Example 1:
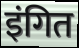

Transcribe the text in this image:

इंगित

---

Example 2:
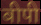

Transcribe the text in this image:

बीपी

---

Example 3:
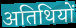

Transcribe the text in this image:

अतिथियों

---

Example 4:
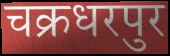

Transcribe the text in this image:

चक्रधरपुर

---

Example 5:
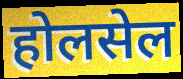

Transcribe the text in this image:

होलसेल